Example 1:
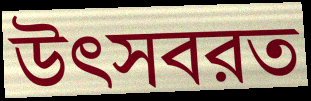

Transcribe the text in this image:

উৎসবরত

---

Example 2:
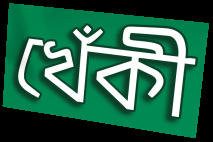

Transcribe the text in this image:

খেঁকী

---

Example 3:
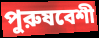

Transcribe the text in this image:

পুরুষবেশী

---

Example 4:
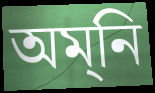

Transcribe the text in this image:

অম্‌নি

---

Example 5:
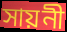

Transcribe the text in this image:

সায়নী